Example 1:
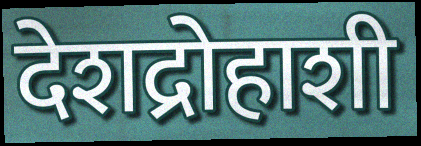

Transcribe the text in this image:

देशद्रोहाशी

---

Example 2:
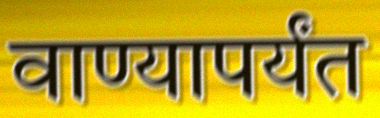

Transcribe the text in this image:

वाण्यापर्यंत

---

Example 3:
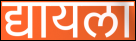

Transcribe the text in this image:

द्यायला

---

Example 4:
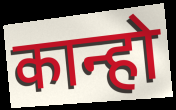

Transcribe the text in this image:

कान्हो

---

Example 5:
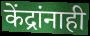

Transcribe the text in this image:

केंद्रांनाही